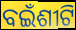
ବଇଁଶୀଟି